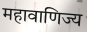
महावाणिज्य